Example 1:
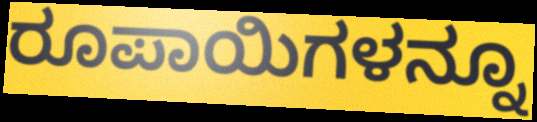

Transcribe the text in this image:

ರೂಪಾಯಿಗಳನ್ನೂ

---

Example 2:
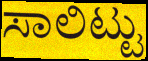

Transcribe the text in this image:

ಸಾಲಿಟ್ಟು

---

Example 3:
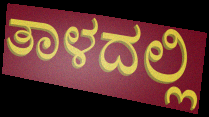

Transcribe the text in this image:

ತಾಳದಲ್ಲಿ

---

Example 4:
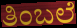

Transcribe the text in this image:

ತಿಂಬಲೆ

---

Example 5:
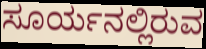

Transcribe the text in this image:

ಸೂರ್ಯನಲ್ಲಿರುವ